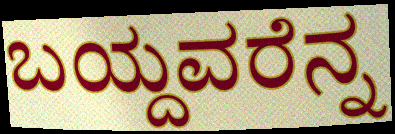
ಬಯ್ದವರೆನ್ನ